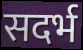
सदर्भ